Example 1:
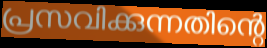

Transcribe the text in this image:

പ്രസവിക്കുന്നതിന്റെ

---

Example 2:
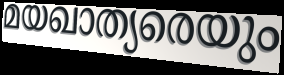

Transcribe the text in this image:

മയഖാത്യരെയും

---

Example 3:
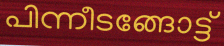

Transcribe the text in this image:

പിന്നീടങ്ങോട്ട്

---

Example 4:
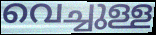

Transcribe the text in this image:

വെച്ചുള്ള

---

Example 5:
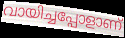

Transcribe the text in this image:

വായിച്ചപ്പോളാണ്